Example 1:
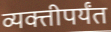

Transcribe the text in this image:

व्यक्तीपर्यंत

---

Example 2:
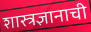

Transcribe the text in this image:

शास्त्रज्ञानाची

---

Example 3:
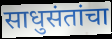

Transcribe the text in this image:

साधुसंतांचा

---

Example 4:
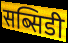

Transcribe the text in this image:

सब्सिडी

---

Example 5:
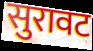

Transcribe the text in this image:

सुरावट